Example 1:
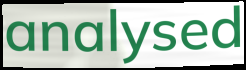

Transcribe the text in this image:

analysed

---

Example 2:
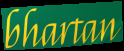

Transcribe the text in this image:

bhartan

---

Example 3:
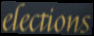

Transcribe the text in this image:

elections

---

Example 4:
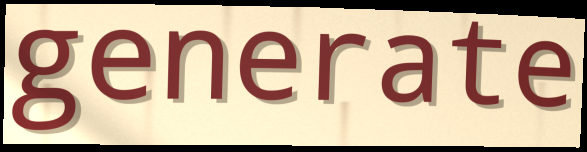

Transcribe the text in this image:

generate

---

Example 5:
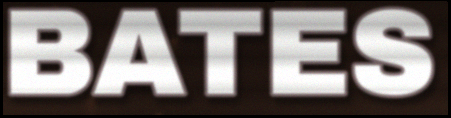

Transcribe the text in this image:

BATES